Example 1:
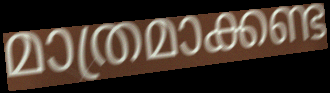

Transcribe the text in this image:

മാത്രമാക്കണ്ട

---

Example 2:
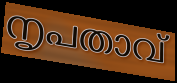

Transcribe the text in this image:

നൃപതാവ്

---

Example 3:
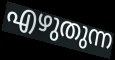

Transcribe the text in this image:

എഴുതുന്ന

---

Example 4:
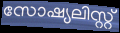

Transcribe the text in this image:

സോഷ്യലിസ്റ്റ്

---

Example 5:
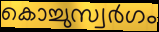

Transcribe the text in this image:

കൊച്ചുസ്വർഗം